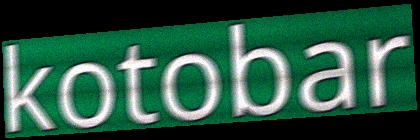
kotobar